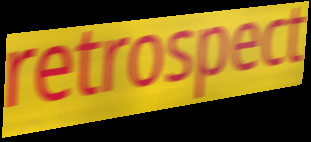
retrospect